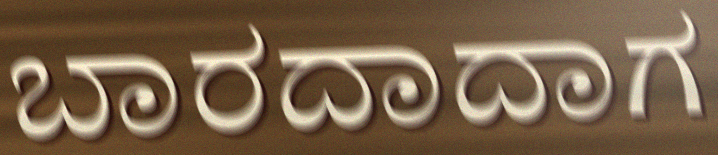
ಬಾರದಾದಾಗ